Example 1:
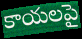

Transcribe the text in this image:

కాయలపై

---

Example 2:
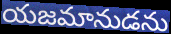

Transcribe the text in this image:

యజమానుడను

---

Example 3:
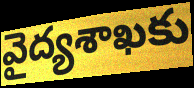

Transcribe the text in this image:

వైద్యశాఖకు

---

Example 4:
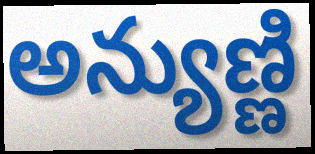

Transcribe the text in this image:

అన్యుణ్ణి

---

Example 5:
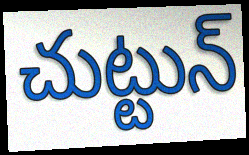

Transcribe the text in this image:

చుట్టున్